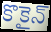
కొకైన్